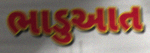
ભાડુઆત